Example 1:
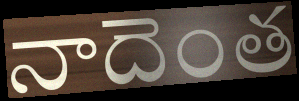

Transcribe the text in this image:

నాదెంత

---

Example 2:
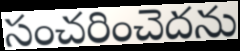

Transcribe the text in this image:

సంచరించెదను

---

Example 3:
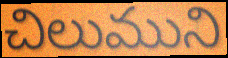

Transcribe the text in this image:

చిలుముని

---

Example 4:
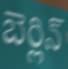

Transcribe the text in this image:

బెర్లిన్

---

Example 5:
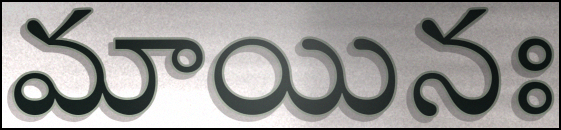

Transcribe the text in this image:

మాయినః